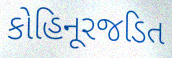
કોહિનૂરજડિત